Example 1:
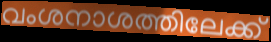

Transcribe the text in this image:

വംശനാശത്തിലേക്ക്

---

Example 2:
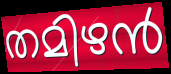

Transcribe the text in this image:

തമിഴൻ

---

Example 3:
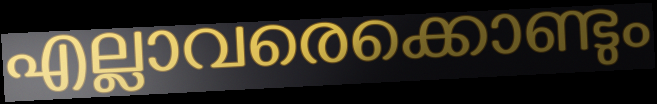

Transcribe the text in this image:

എല്ലാവരെക്കൊണ്ടും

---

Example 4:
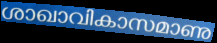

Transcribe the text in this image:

ശാഖാവികാസമാണു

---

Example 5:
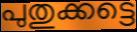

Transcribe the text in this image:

പുതുക്കട്ടെ